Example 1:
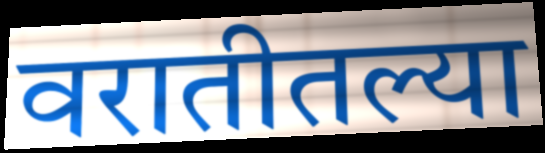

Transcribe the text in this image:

वरातीतल्या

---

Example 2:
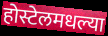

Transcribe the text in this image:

होस्टेलमधल्या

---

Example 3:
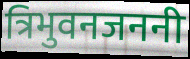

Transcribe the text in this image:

त्रिभुवनजननी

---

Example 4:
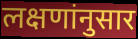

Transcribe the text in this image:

लक्षणांनुसार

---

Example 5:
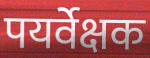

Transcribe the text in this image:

पयर्वेक्षक